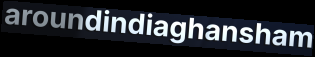
aroundindiaghansham